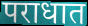
पराधात